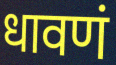
धावणं